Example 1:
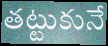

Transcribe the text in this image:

తట్టుకునే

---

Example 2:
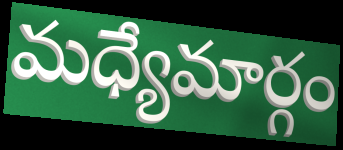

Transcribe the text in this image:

మధ్యేమార్గం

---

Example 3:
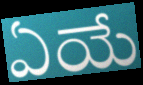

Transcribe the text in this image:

ఏయే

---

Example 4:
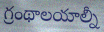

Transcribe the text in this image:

గ్రంథాలయాల్నీ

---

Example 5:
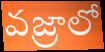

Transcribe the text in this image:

వజ్రాలో